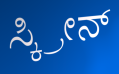
ಸ್ಕ್ರೀನ್